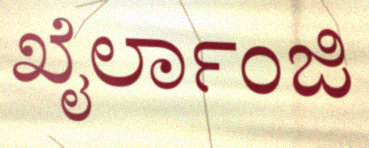
ಖೈರ್ಲಾಂಜಿ